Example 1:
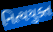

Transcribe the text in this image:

નિત્યયુક્ત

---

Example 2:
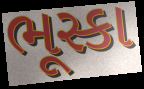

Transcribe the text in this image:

ભૂસ્કા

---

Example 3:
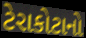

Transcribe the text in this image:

ટેરાકોટાનો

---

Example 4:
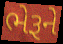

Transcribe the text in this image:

ભેરૂને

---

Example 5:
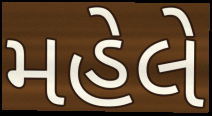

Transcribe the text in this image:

મહેલે